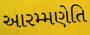
આરમ્મણેતિ